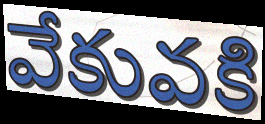
వేకువకి